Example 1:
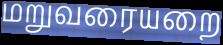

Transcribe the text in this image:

மறுவரையறை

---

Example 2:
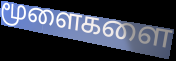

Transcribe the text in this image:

மூளைகளை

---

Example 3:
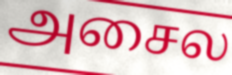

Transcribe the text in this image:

அசைல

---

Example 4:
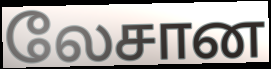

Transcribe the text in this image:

லேசான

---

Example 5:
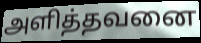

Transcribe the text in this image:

அளித்தவனை